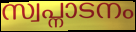
സ്വപ്നാടനം